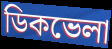
ডিকভেলা